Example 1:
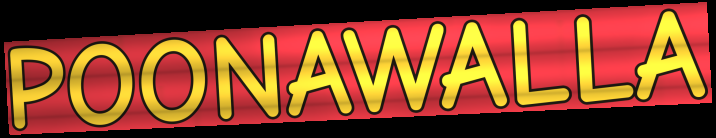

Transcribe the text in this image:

POONAWALLA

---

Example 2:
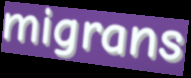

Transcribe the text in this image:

migrans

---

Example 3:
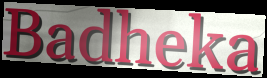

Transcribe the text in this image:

Badheka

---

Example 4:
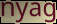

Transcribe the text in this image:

nyag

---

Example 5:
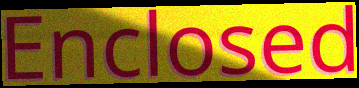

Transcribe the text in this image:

Enclosed